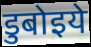
डुबोइये